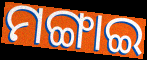
ମଙ୍ଗାଇ